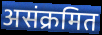
असंक्रमित